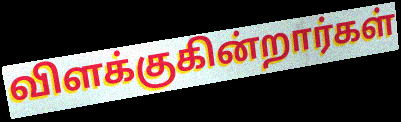
விளக்குகின்றார்கள்